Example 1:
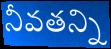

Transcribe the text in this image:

నీవతన్ని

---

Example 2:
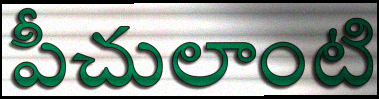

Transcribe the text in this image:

పీచులాంటి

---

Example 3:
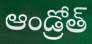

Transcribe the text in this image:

ఆండ్రోత్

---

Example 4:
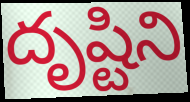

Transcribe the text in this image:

దృష్టిని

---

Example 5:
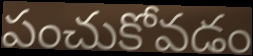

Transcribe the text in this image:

పంచుకోవడం